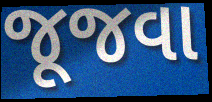
જૂજવા